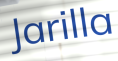
Jarilla